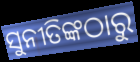
ସୁନୀତିଙ୍କଠାରୁ